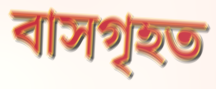
বাসগৃহত